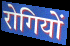
रोगियों